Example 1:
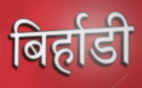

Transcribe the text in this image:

बिर्हाडी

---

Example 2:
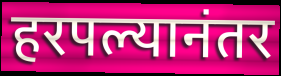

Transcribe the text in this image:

हरपल्यानंतर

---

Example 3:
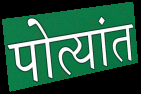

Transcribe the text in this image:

पोत्यांत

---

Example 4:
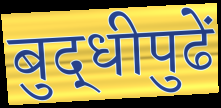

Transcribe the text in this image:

बुद्धीपुढें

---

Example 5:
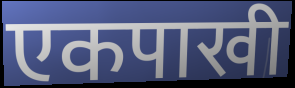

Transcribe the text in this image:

एकपाखी